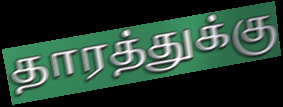
தாரத்துக்கு